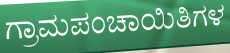
ಗ್ರಾಮಪಂಚಾಯಿತಿಗಳ